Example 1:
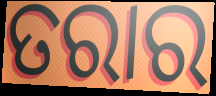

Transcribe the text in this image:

ତରାର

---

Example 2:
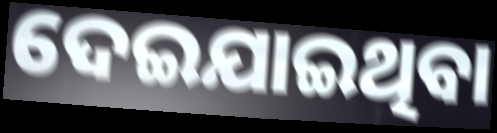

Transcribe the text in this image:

ଦେଇଯାଇଥିବା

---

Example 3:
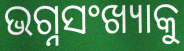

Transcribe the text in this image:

ଭଗ୍ନସଂଖ୍ୟାକୁ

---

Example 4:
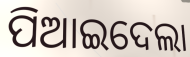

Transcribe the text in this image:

ପିଆଇଦେଲା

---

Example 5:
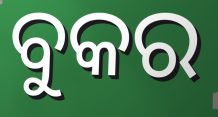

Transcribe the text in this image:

ବୁକର